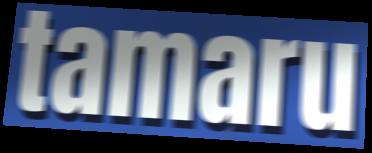
tamaru